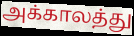
அக்காலத்து